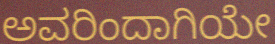
ಅವರಿಂದಾಗಿಯೇ